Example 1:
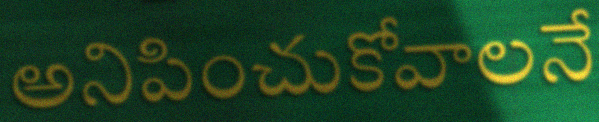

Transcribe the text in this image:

అనిపించుకోవాలనే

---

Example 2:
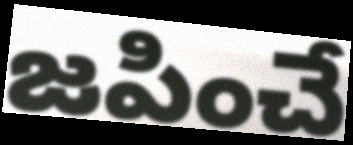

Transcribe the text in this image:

జపించే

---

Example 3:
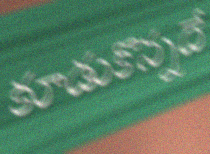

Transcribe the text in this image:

కూడుకొన్నదే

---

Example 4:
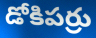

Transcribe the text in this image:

డోకిపర్రు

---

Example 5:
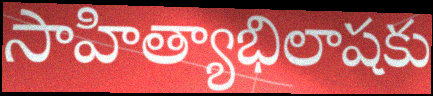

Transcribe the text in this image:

సాహిత్యాభిలాషకు